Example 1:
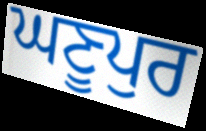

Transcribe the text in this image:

ਘਣੂਪੁਰ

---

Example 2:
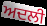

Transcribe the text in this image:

ਅਦਲੀ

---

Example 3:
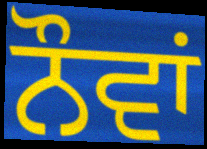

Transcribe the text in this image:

ਨੌਵਾਂ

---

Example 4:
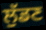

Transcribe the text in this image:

ਲੁੱਡਣ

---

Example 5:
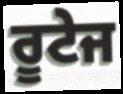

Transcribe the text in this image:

ਰੂਟੇਜ